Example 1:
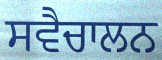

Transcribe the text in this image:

ਸਵੈਚਾਲਨ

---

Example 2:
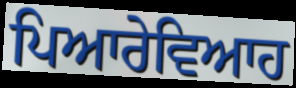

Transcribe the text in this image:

ਪਿਆਰੇਵਿਆਹ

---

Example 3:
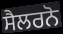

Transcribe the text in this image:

ਸੈਲਰਨੋ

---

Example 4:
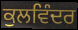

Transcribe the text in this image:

ਕੁਲਵਿੰਦਰ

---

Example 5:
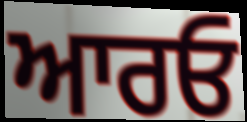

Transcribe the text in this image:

ਆਰਓ